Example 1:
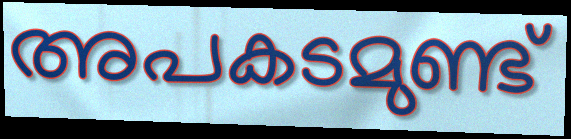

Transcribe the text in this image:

അപകടമുണ്ട്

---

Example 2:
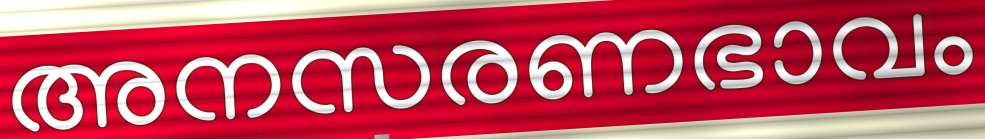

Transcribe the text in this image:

അനസരണഭാവം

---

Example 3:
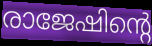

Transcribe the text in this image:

രാജേഷിന്റെ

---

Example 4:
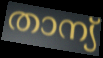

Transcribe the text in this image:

താന്യ്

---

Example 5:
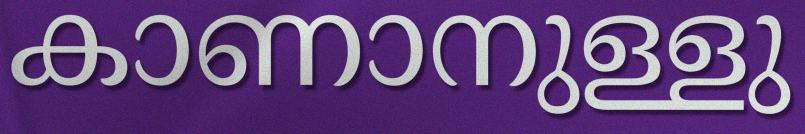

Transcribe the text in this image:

കാണാനുള്ളു